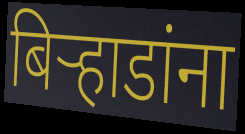
बिऱ्हाडांना